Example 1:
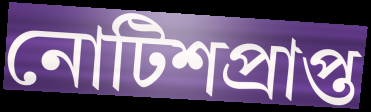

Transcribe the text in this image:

নোটিশপ্রাপ্ত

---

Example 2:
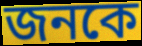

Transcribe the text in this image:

জনকে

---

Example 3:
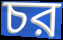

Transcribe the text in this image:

চর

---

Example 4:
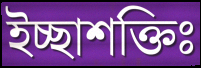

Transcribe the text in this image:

ইচ্ছাশক্তিঃ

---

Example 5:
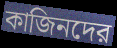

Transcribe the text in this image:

কাজিনদের